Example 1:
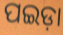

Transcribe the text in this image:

ପଇଡ଼ା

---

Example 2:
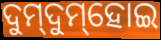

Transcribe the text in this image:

ଦୁମ୍‌ଦୁମ୍‌ହୋଇ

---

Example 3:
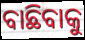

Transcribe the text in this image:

ବାଛିବାକୁ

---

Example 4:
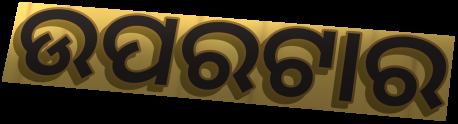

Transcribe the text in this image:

ଉପରଟାର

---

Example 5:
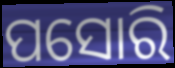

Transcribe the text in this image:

ପସୋରି